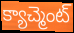
క్యాచ్మెంట్